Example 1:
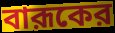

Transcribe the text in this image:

বারূকের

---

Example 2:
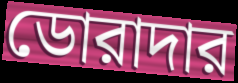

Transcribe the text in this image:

ডোরাদার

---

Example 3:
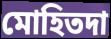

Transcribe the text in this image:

মোহিতদা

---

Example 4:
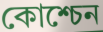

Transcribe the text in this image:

কোশ্চেন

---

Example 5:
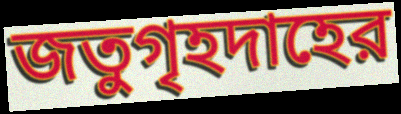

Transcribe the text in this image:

জতুগৃহদাহের